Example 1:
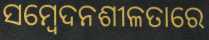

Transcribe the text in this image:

ସମ୍ବେଦନଶୀଳତାରେ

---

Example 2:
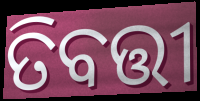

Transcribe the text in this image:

ତିବତ୍ତୀ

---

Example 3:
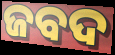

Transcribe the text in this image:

ଜବଦ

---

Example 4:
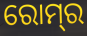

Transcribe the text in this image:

ରୋମ୍‍ର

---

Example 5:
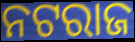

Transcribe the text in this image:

ନଟରାଜ